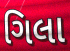
ગિલા